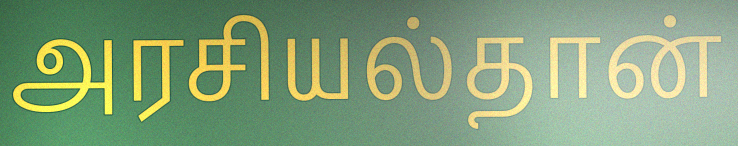
அரசியல்தான்